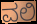
ವಲಿ